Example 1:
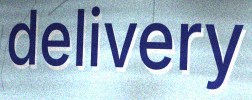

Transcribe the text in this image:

delivery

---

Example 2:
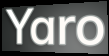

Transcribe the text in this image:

Yaro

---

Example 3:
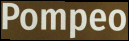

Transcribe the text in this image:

Pompeo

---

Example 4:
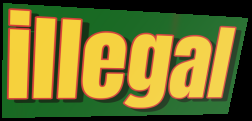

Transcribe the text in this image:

illegal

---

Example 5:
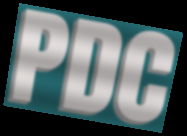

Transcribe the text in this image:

PDC